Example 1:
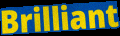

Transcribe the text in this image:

Brilliant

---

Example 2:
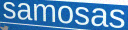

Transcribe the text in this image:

samosas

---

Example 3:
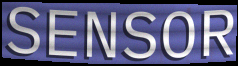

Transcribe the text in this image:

SENSOR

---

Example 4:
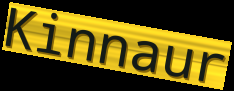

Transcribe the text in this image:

Kinnaur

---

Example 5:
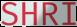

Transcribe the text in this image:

SHRI